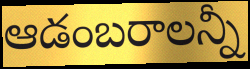
ఆడంబరాలన్నీ